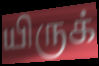
யிருக்